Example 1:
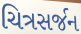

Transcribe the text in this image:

ચિત્રસર્જન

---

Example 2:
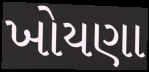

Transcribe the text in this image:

ખોયણા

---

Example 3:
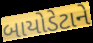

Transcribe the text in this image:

બાયોડેટાને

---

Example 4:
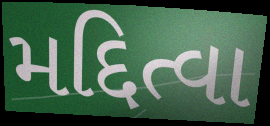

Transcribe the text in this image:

મદ્દિત્વા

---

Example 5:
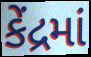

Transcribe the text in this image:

કેંદ્રમાં